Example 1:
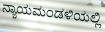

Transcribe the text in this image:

ನ್ಯಾಯಮಂಡಳಿಯಲ್ಲಿ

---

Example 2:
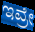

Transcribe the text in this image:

ಇವ್ರೇ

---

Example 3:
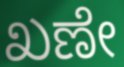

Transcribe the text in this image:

ಖಣೇ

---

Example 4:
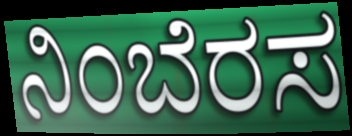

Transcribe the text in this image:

ನಿಂಬೆರಸ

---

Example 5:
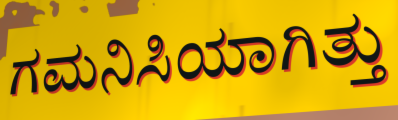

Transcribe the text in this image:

ಗಮನಿಸಿಯಾಗಿತ್ತು